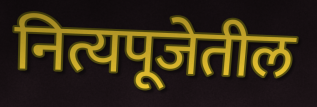
नित्यपूजेतील